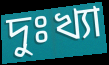
দুঃখ্যা